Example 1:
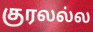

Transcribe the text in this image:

குரலல்ல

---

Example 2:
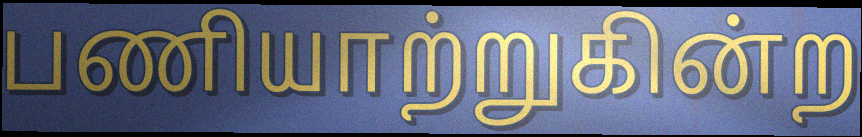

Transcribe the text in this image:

பணியாற்றுகின்ற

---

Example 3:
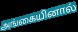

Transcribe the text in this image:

அங்கையினால்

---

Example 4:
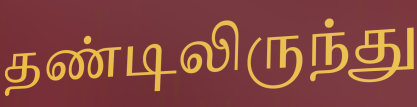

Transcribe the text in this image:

தண்டிலிருந்து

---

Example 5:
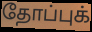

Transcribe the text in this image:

தோப்புக்